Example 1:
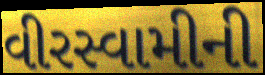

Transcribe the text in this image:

વીરસ્વામીની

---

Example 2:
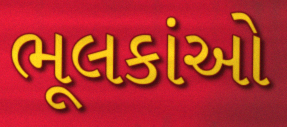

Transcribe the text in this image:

ભૂલકાંઓ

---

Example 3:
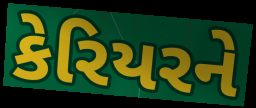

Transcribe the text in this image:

કેરિયરને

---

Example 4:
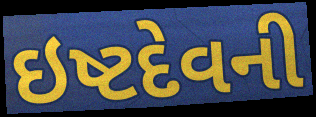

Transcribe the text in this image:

ઇષ્ટદેવની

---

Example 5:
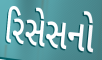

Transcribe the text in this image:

રિસેસનો